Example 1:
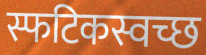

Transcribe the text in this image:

स्फटिकस्वच्छ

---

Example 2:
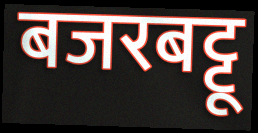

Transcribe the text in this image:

बजरबट्टू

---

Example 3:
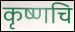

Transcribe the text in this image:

कृष्णचि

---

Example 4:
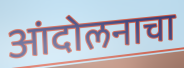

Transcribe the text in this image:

आंदोलनाचा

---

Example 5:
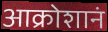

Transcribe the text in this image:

आक्रोशानं